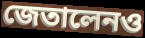
জেতালেনও